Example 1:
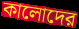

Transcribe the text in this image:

কালোদের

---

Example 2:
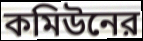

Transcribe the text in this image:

কমিউনের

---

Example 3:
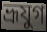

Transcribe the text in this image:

ভ্রূযুগ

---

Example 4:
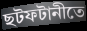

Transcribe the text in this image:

ছটফটানীতে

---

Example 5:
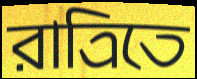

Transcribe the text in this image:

রাত্রিতে